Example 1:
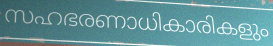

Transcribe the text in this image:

സഹഭരണാധികാരികളും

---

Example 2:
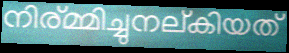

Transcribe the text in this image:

നിര്മ്മിച്ചുനല്കിയത്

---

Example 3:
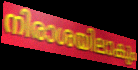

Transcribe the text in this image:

നിരാശയിലാകും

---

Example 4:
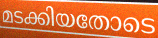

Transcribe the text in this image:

മടക്കിയതോടെ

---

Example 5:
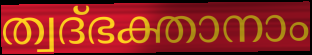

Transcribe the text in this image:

ത്വദ്ഭക്താനാം